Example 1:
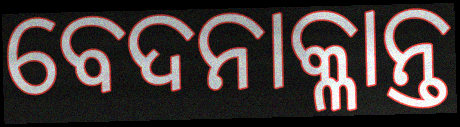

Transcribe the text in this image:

ବେଦନାକ୍ଳାନ୍ତ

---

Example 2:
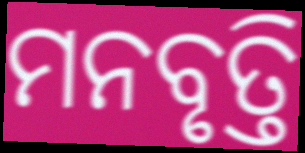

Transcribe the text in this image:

ମନବୃତ୍ତି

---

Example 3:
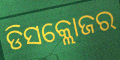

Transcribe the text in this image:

ଡିସକ୍ଲୋଜର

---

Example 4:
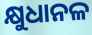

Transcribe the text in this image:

କ୍ଷୁଧାନଳ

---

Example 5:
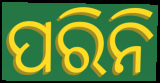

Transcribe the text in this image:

ପରିନି